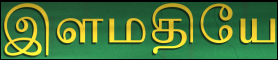
இளமதியே